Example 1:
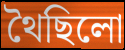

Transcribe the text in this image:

থৈছিলো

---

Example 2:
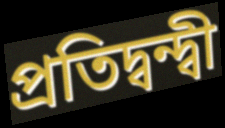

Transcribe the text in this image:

প্ৰতিদ্বন্দ্বী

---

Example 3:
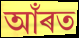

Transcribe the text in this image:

আঁৰত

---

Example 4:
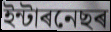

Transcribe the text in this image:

ইন্টাৰনেছৰ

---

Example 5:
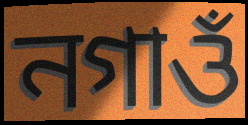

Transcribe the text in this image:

নগাওঁ